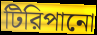
টিরিপানো